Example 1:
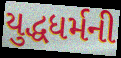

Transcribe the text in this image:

યુદ્ધધર્મની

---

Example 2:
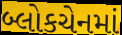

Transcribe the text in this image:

બ્લોકચેનમાં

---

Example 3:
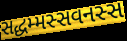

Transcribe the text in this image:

સદ્ધમ્મસ્સવનસ્સ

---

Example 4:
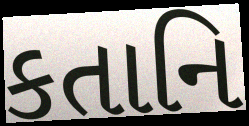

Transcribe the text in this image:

કતાનિ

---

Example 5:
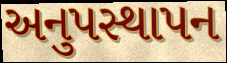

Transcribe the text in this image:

અનુપસ્થાપન